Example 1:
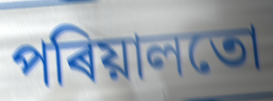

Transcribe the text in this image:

পৰিয়ালতো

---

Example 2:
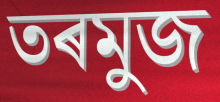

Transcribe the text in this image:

তৰমুজ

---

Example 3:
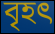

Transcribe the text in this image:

বৃহৎ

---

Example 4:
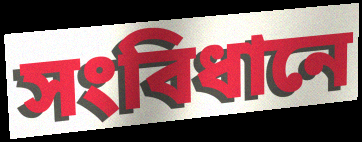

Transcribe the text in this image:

সংবিধানে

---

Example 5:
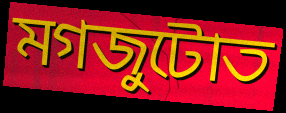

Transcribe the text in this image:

মগজুটোত